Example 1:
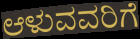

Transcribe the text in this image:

ಆಳುವವರಿಗೆ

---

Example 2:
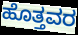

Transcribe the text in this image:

ಹೊತ್ತವರ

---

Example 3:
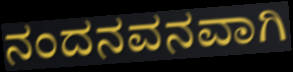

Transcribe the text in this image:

ನಂದನವನವಾಗಿ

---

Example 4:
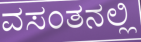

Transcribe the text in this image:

ವಸಂತನಲ್ಲಿ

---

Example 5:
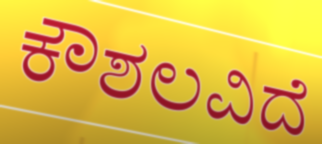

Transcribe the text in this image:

ಕೌಶಲವಿದೆ